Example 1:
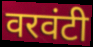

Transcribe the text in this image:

वरवंटी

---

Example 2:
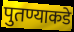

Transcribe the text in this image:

पुतण्याकडे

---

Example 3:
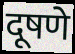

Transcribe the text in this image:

दूषणे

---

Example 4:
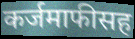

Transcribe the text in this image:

कर्जमाफीसह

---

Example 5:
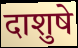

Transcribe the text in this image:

दाशुषे